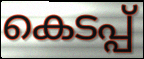
കെടപ്പ്